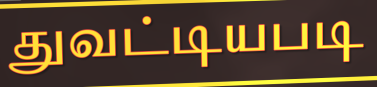
துவட்டியபடி